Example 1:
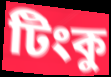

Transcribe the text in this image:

টিংকু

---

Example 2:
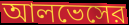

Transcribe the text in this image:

আলভেসের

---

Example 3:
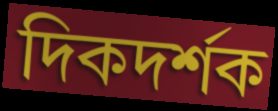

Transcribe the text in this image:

দিকদর্শক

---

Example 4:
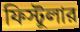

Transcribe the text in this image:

ফিস্টুলার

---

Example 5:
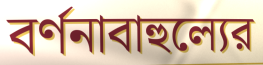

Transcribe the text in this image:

বর্ণনাবাহুল্যের